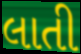
લાતી